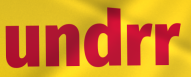
undrr